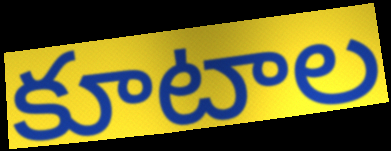
కూటాల